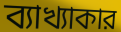
ব্যাখ্যাকার